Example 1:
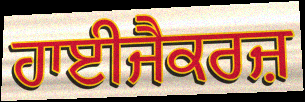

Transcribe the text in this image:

ਹਾਈਜੈਕਰਜ਼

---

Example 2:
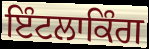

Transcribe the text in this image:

ਇੰਟਲਾਕਿੰਗ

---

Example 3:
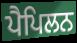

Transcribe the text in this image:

ਪੈਪਿਲਨ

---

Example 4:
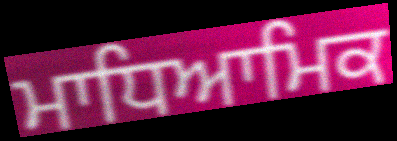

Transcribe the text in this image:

ਮਾਧਿਆਮਿਕ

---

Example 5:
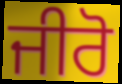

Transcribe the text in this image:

ਜੀਰੋ